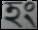
হং